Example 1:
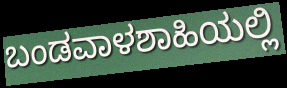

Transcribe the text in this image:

ಬಂಡವಾಳಶಾಹಿಯಲ್ಲಿ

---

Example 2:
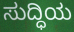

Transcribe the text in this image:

ಸುದ್ಧಿಯ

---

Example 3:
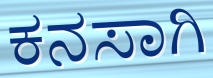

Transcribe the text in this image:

ಕನಸಾಗಿ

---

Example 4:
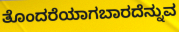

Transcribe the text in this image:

ತೊಂದರೆಯಾಗಬಾರದೆನ್ನುವ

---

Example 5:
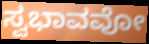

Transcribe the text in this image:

ಸ್ವಭಾವವೋ